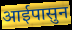
आईपासुन